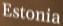
Estonia